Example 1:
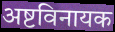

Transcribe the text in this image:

अष्टविनायक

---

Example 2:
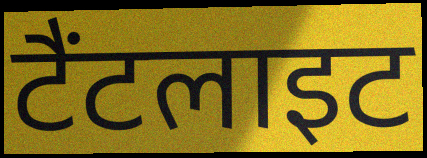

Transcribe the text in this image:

टैंटलाइट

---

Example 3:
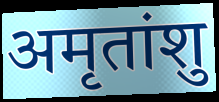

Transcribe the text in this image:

अमृतांशु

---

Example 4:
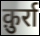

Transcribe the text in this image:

क़ुर्रा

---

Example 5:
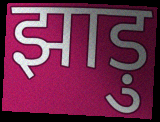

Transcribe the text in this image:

झाड़ु